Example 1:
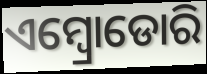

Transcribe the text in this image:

ଏମ୍ବ୍ରୋଡୋରି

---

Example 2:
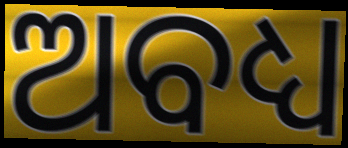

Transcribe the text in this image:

ଅବଧ୍ୟ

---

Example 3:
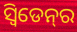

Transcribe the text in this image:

ସ୍ୱିଡେନ୍‍ର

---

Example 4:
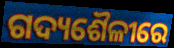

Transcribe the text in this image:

ଗଦ୍ୟଶୈଳୀରେ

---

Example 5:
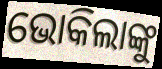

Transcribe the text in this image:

ଭୋକିଲାଙ୍କୁ